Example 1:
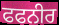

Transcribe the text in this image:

ਫਫਨੀਰ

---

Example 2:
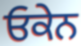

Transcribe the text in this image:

ਓਕੇਨ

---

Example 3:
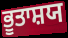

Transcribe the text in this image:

ਭੂਤਾਸ਼ਯ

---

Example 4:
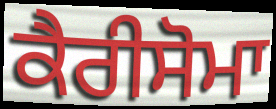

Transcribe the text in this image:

ਕੈਰੀਸੋਮਾ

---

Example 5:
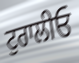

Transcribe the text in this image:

ਟੁਰਾਲੀਓ